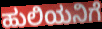
ಹುಲಿಯನಿಗೆ